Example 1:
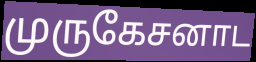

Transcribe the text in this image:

முருகேசனாட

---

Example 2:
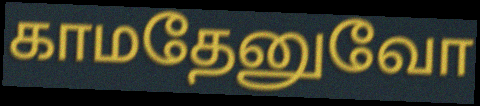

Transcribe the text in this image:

காமதேனுவோ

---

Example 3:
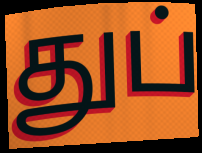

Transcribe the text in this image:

துப்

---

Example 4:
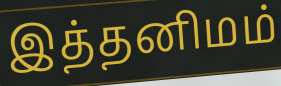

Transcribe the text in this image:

இத்தனிமம்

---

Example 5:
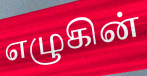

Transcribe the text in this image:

எழுகின்